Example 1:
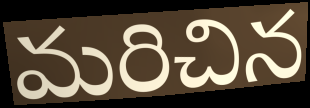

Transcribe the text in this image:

మరిచిన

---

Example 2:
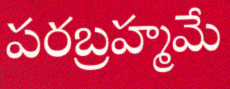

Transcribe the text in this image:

పరబ్రహ్మమే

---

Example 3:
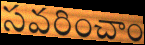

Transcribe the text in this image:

సవరించాం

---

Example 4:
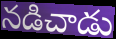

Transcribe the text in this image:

నడిచాడు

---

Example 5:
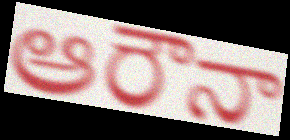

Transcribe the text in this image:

ఆరౌనా